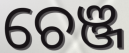
ଚେଞ୍ଜ